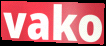
vako